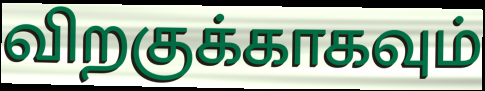
விறகுக்காகவும்